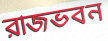
রাজভবন